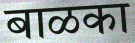
बाळका